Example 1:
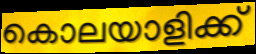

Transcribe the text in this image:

കൊലയാളിക്ക്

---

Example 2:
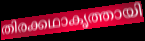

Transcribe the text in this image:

തിരക്കഥാകൃത്തായി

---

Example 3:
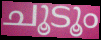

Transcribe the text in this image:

ചൂടൂം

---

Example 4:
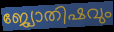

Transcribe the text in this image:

ജ്യോതിഷവും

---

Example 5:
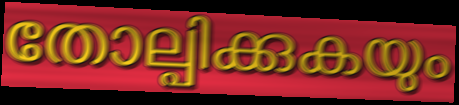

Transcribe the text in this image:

തോല്പിക്കുകയും